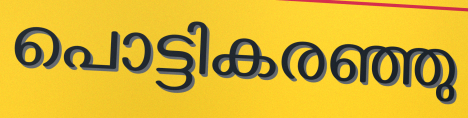
പൊട്ടികരഞ്ഞു